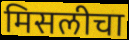
मिसलीचा